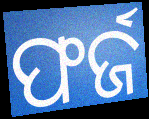
ଫର୍ଜ